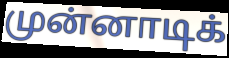
முன்னாடிக்